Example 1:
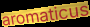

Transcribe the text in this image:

aromaticus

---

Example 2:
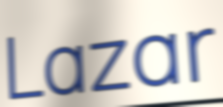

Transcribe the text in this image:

Lazar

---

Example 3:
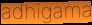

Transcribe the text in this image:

adhigama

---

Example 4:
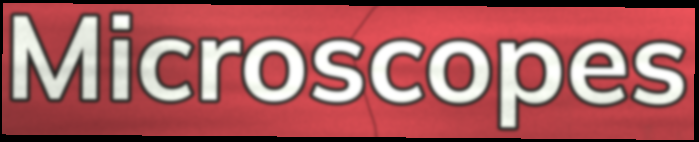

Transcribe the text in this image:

Microscopes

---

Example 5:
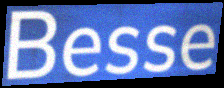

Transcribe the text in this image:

Besse